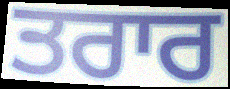
ਤਰਾਰ